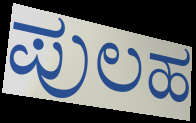
ಪುಲಹ